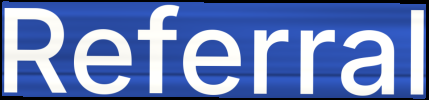
Referral